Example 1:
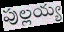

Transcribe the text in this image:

పుల్లయ్య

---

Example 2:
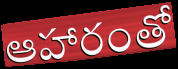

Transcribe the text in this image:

ఆహారంతో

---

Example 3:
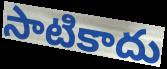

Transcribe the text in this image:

సాటికాదు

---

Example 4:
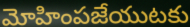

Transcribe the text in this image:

మోహింపజేయుటకు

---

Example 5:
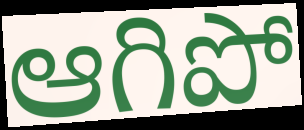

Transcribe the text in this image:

ఆగిపో